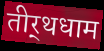
तीर्थधाम